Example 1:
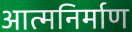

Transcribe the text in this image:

आत्मनिर्माण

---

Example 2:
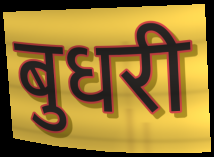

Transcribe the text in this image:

बुधरी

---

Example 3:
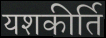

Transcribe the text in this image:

यशकीर्ति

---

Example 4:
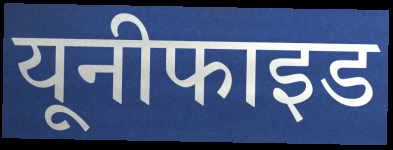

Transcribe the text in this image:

यूनीफाइड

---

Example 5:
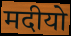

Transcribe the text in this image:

मदीयो